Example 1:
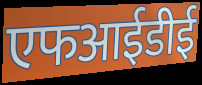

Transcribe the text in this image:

एफआईडीई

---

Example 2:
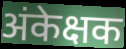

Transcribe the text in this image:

अंकेक्षक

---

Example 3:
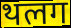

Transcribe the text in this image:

थलग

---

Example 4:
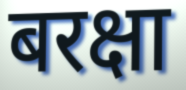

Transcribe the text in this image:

बरक्षा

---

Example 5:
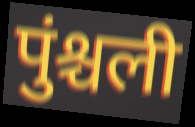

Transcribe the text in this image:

पुंश्चली